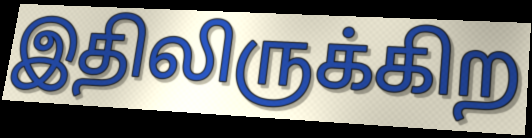
இதிலிருக்கிற